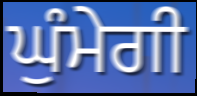
ਘੁੰਮੇਗੀ